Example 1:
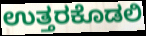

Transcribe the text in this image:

ಉತ್ತರಕೊಡಲಿ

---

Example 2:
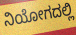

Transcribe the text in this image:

ನಿಯೋಗದಲ್ಲಿ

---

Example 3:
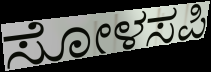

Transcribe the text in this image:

ಸೋಳಸಪಿ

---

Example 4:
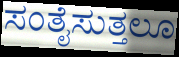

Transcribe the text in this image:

ಸಂತೈಸುತ್ತಲೂ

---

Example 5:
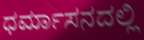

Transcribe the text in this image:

ಧರ್ಮಾಸನದಲ್ಲಿ